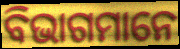
ବିଭାଗମାନେ